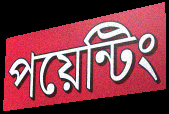
পয়েন্টিং